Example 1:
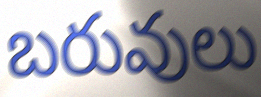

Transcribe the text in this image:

బరువులు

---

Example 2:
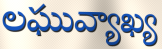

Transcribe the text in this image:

లఘువ్యాఖ్య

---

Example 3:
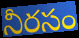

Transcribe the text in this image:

నీరసం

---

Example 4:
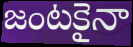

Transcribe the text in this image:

జంటకైనా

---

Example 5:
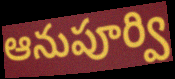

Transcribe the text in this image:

ఆనుపూర్వి